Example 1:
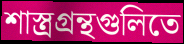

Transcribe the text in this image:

শাস্ত্রগ্রন্থগুলিতে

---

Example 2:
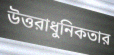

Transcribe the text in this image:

উত্তরাধুনিকতার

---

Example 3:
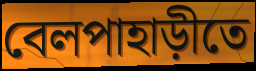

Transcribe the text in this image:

বেলপাহাড়ীতে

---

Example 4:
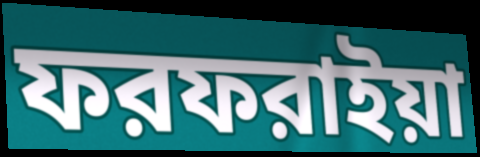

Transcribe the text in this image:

ফরফরাইয়া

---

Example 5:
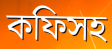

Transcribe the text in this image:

কফিসহ